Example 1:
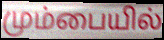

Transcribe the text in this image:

மும்பையில்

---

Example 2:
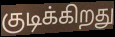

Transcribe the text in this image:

குடிக்கிறது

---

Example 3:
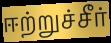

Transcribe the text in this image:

ஈற்றுச்சீர்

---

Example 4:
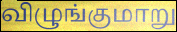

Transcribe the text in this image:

விழுங்குமாறு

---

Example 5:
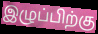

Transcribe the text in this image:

இழுப்பிற்கு